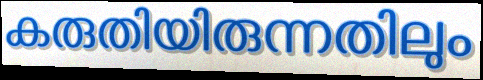
കരുതിയിരുന്നതിലും